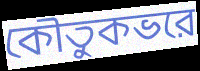
কৌতুকভরে